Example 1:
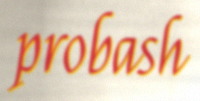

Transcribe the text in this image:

probash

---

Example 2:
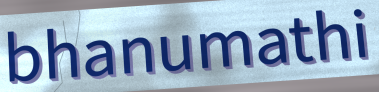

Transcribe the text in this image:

bhanumathi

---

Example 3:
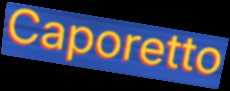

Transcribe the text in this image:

Caporetto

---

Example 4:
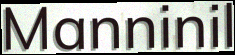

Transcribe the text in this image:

Manninil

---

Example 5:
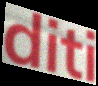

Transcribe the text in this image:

diti